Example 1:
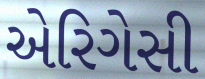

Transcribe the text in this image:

એરિગેસી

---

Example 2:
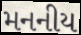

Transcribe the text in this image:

મનનીય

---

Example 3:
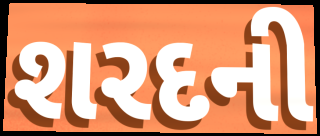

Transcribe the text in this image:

શરદની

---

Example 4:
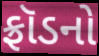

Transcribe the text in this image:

ફ્રૉડનો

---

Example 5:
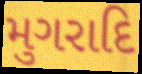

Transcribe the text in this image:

મુગરાદિ